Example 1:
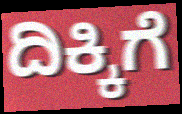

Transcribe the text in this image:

ದಿಕ್ಕಿಗೆ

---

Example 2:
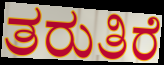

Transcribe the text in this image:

ತರುತಿರೆ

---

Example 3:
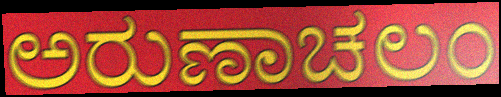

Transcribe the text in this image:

ಅರುಣಾಚಲಂ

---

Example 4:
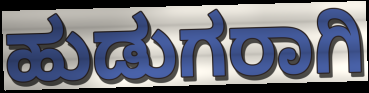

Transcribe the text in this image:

ಹುಡುಗರಾಗಿ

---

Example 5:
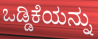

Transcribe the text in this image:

ಒಡ್ಡಿಕೆಯನ್ನು